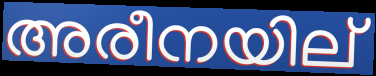
അരീനയില്